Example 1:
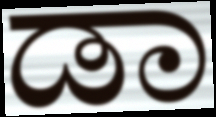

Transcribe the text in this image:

ಡಾ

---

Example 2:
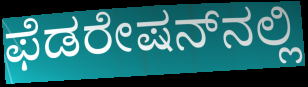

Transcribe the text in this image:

ಫೆಡರೇಷನ್‌ನಲ್ಲಿ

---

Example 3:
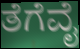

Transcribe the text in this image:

ತೆಗೆವೈ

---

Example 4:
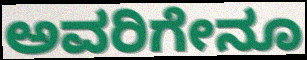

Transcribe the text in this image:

ಅವರಿಗೇನೂ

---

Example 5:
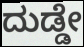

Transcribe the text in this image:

ದುಡ್ಡೇ